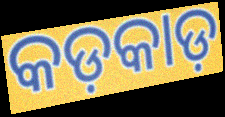
କଡ଼କାଡ଼